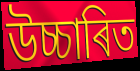
উচ্চাৰিত